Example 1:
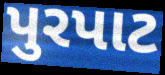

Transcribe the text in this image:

પુરપાટ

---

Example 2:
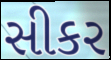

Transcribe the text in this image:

સીકર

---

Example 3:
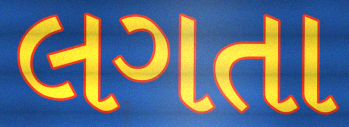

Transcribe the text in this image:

લગતા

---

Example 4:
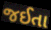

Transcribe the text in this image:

જઈતા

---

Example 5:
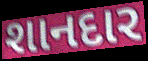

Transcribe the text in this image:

શાનદાર